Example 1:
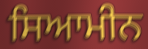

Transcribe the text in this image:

ਸਿਆਮੀਨ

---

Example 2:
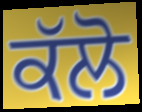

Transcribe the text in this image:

ਕੱਲੋ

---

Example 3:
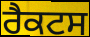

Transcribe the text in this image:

ਰੈਕਟਸ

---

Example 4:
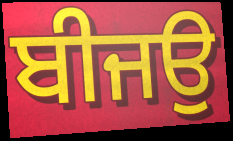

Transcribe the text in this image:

ਬੀਜਉ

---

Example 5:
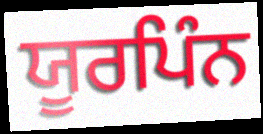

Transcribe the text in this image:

ਯੂਰਪਿੰਨ